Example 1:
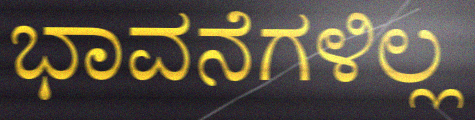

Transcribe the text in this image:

ಭಾವನೆಗಳಿಲ್ಲ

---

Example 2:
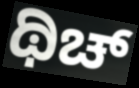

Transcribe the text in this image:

ಥಿಚ್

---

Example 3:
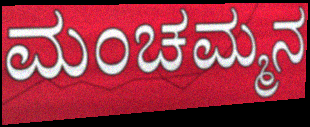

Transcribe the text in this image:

ಮಂಚಮ್ಮನ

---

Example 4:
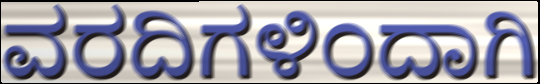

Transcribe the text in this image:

ವರದಿಗಳಿಂದಾಗಿ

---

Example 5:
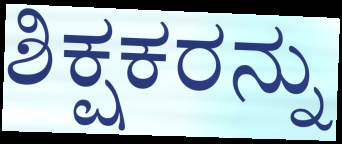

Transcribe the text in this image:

ಶಿಕ್ಷಕರನ್ನು